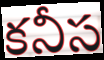
కనీస